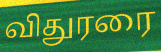
விதுரரை